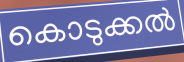
കൊടുക്കൽ